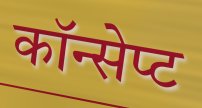
कॉन्‍सेप्‍ट